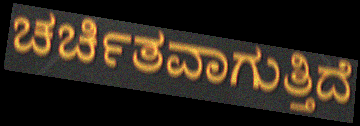
ಚರ್ಚಿತವಾಗುತ್ತಿದೆ